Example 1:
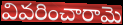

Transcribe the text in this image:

వివరించారామె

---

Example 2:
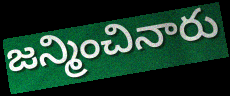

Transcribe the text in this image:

జన్మించినారు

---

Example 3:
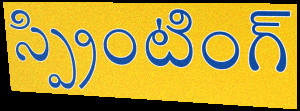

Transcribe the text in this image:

స్ప్రింటింగ్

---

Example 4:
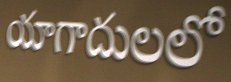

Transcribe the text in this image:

యాగాదులలో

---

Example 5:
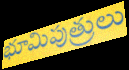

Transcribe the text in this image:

భూమిపుత్రులు